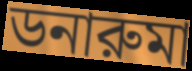
ডনারুমা